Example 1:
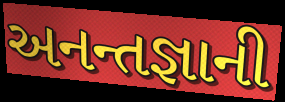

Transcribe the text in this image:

અનન્તજ્ઞાની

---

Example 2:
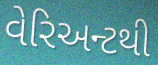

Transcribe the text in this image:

વેરિઅન્ટથી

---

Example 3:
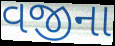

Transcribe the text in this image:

વજીના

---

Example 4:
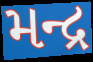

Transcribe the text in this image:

મન્દ્ર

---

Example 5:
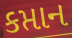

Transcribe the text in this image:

કપ્તાન